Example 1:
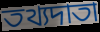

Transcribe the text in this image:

তথ্যদাতা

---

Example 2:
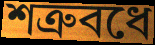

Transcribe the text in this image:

শত্রুবধে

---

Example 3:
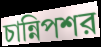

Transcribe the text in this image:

চান্নিপশর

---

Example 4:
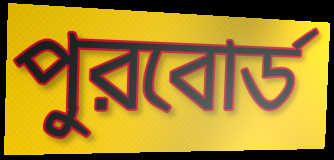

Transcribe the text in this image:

পুরবোর্ড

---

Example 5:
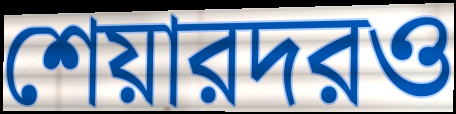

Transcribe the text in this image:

শেয়ারদরও